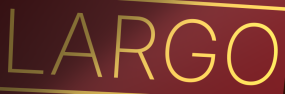
LARGO